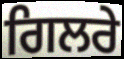
ਗਿਲਰੇ